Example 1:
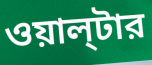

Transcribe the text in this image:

ওয়াল্‌টার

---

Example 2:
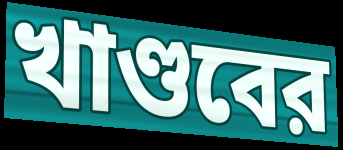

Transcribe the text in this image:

খাণ্ডবের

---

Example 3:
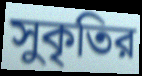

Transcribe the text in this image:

সুকৃতির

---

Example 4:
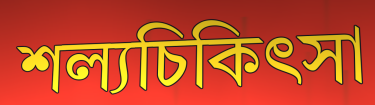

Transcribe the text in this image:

শল্যচিকিৎসা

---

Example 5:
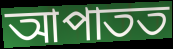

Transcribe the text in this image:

আপাতত